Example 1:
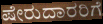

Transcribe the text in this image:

ಷೇರುದಾರರಿಗೆ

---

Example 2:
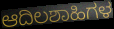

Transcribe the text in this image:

ಆದಿಲಶಾಹಿಗಳ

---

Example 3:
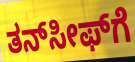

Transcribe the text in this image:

ತನ್‍ಸೀಫ್‍ಗೆ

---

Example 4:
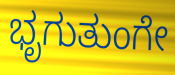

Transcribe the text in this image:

ಭೃಗುತುಂಗೇ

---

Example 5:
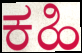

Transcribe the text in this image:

ಕಹಿ